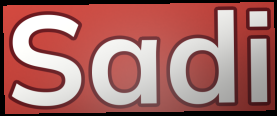
Sadi